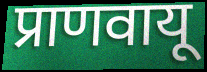
प्राणवायू